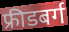
फ्रीडबर्ग